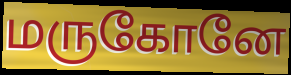
மருகோனே